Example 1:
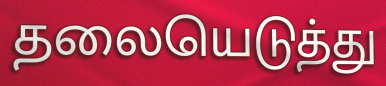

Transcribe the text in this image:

தலையெடுத்து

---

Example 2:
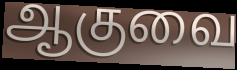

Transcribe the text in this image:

ஆகுவை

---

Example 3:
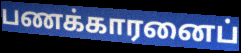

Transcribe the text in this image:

பணக்காரனைப்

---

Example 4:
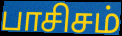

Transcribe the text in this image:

பாசிசம்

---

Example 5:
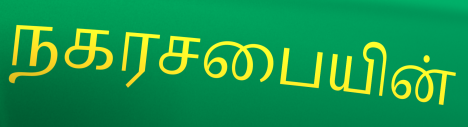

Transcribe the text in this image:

நகரசபையின்